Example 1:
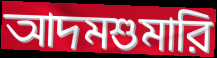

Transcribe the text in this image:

আদমশুমারি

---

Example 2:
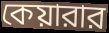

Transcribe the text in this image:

কেয়ারার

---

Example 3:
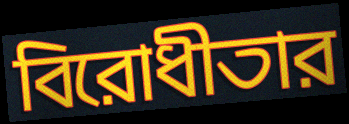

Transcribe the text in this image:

বিরোধীতার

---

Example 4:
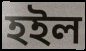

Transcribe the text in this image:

হইল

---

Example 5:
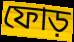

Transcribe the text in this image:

ফোড়